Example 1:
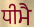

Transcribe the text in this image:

ਧੀਮੈ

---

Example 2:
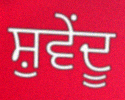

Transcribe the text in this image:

ਸ਼ੁਵੇਂਦੂ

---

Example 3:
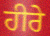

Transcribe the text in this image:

ਹੀਰੇ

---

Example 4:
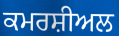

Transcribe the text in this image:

ਕਮਰਸ਼ੀਅਲ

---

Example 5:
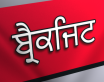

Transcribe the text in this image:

ਬ੍ਰੈਕਜਿਟ